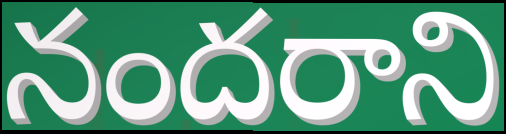
నందరాని